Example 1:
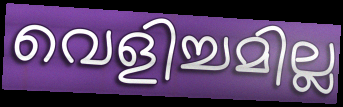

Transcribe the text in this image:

വെളിച്ചമില്ല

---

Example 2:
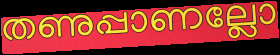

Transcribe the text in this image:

തണുപ്പാണല്ലോ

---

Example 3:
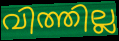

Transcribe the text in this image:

വിത്തില്ല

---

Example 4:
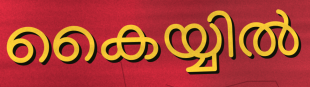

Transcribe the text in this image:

കൈയ്യിൽ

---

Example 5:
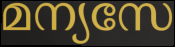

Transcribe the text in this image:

മന്യസേ